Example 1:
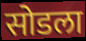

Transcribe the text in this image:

सोडला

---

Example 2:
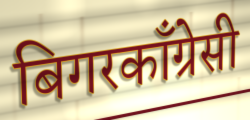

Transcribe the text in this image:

बिगरकाँग्रेसी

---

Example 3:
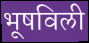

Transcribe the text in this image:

भूषविली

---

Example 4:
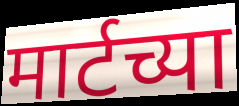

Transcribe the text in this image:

मार्टच्या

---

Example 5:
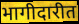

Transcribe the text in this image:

भागीदारीत